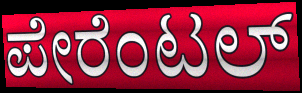
ಪೇರೆಂಟಲ್